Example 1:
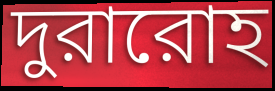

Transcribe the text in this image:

দুরারোহ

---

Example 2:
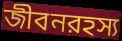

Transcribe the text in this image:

জীবনরহস্য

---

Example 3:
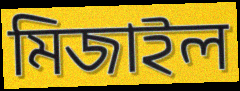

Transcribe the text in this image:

মিজাইল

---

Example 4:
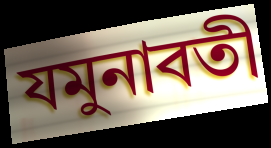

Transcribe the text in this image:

যমুনাবতী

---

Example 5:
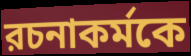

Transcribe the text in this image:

রচনাকর্মকে